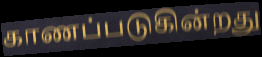
காணப்படுகின்றது